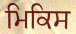
ਮਿਕਿਸ